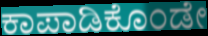
ಕಾಪಾಡಿಕೊಂಡೇ